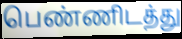
பெண்ணிடத்து